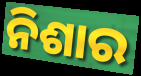
ନିଶାର